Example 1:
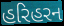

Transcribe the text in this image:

હરિહરન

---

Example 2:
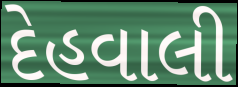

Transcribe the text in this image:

દેહવાલી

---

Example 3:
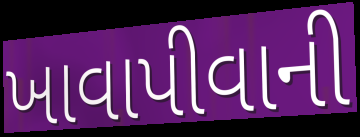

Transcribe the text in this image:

ખાવાપીવાની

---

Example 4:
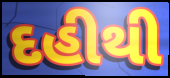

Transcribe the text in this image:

દહીથી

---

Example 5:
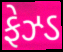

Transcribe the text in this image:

ફેઝ્ડ